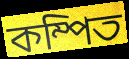
কম্পিত